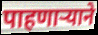
पाहणार्‍याने